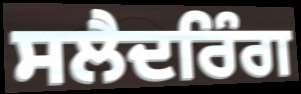
ਸਲੈਦਰਿੰਗ